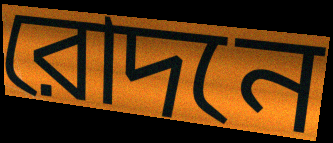
রোদনে